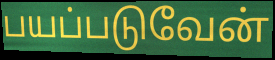
பயப்படுவேன்